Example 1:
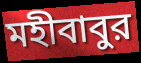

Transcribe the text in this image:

মহীবাবুর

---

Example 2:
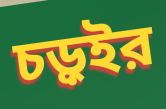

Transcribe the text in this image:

চড়ুইর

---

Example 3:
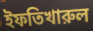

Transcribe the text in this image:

ইফতিখারুল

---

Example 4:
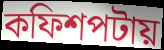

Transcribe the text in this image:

কফিশপটায়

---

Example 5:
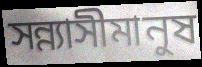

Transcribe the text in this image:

সন্ন্যাসীমানুষ